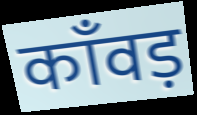
काँवड़